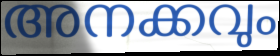
അനക്കവും